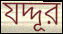
যদ্দূর